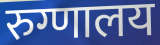
रुग्णालय